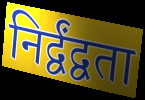
निर्द्वंद्वता